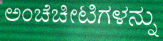
ಅಂಚೆಚೀಟಿಗಳನ್ನು